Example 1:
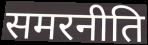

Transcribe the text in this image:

समरनीति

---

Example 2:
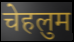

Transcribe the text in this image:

चेहलुम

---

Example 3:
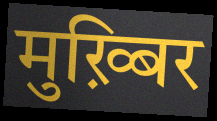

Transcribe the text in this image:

मुख़्बिर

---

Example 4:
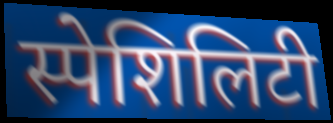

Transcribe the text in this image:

स्पेशिलिटी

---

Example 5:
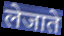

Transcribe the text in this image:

लेजाते